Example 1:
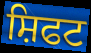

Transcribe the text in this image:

ਸ਼ਿਫਟ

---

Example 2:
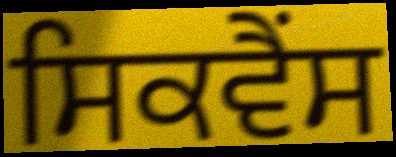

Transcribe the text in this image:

ਸਿਕਵੈਂਸ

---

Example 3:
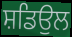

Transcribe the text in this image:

ਸ਼ਡਿਉਲ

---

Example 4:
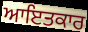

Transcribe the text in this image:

ਆਇਤਕਾਰ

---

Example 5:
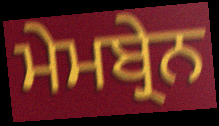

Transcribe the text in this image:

ਮੇਮਬ੍ਰੇਨ